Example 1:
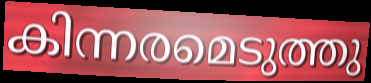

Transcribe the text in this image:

കിന്നരമെടുത്തു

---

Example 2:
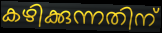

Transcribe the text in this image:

കഴിക്കുന്നതിന്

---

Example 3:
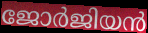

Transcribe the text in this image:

ജോർജിയൻ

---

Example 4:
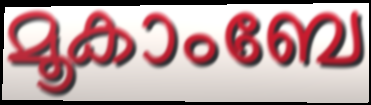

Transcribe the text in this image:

മൂകാംബേ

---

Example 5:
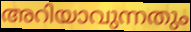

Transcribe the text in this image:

അറിയാവുന്നതും